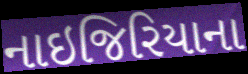
નાઇજિરિયાના